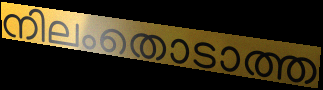
നിലംതൊടാത്ത